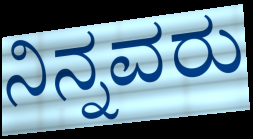
ನಿನ್ನವರು